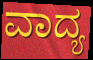
ವಾದ್ಯ